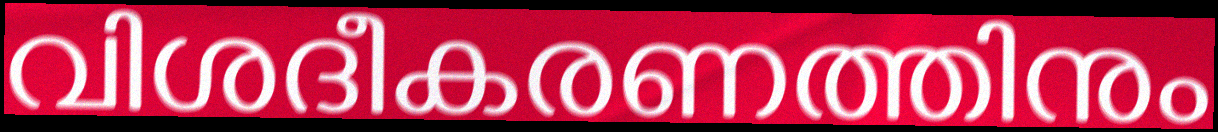
വിശദീകരണത്തിനും